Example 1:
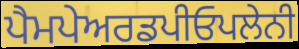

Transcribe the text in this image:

ਪੈਮਪੇਅਰਡਪੀਓਪਲੇਨੀ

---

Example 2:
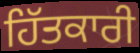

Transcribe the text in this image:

ਹਿੱਤਕਾਰੀ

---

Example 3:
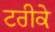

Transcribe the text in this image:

ਟਰੀਕੇ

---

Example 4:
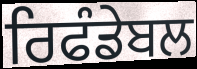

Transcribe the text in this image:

ਰਿਫੰਡੇਬਲ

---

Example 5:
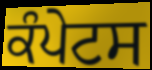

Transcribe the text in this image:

ਕੰਪੇਟਸ